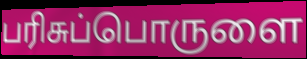
பரிசுப்பொருளை